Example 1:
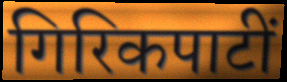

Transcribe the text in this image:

गिरिकपाटीं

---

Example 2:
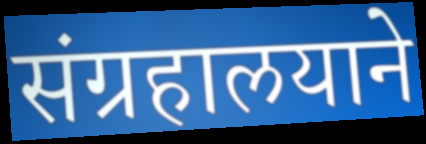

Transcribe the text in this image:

संग्रहालयाने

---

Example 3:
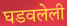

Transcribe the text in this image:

घडवलेली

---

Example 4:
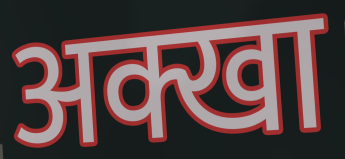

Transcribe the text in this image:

अक्खा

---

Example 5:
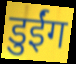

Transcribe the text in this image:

डुईंग